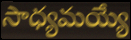
సాధ్యమయ్యే